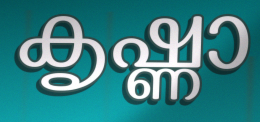
കൃഷ്ണാ